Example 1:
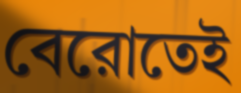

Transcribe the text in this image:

বেরোতেই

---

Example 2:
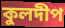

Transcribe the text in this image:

কুলদীপ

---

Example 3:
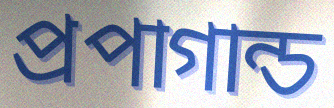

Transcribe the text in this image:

প্রপাগান্ড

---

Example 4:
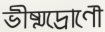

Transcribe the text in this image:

ভীষ্মদ্রোণৌ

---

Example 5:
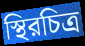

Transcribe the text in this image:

স্থিরচিত্র